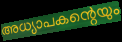
അധ്യാപകന്റെയും